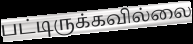
பட்டிருக்கவில்லை